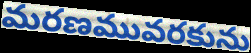
మరణమువరకును